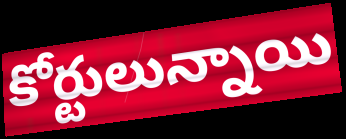
కోర్టులున్నాయి